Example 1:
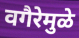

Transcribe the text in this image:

वगैरेमुळे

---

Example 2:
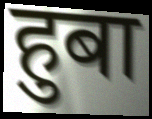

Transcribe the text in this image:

हुबा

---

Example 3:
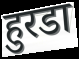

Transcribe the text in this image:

हुरडा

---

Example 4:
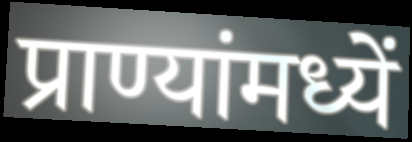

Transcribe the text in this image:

प्राण्यांमध्यें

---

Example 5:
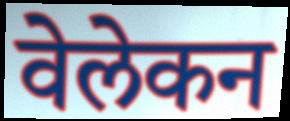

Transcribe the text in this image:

वेलेकन